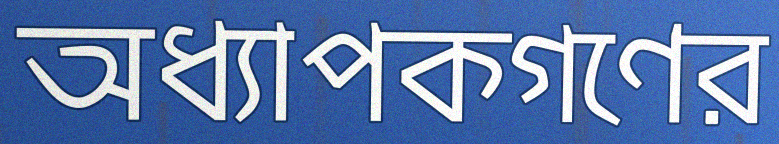
অধ্যাপকগণের